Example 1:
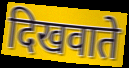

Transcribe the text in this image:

दिखवाते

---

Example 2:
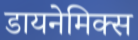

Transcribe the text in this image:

डायनेमिक्स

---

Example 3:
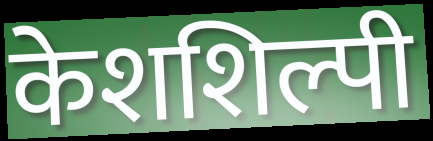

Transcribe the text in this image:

केशशिल्पी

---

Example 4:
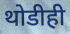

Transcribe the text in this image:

थोडीही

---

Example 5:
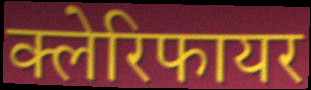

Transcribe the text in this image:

क्लेरिफायर